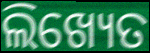
ଲିଖ୍ଯେତ